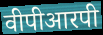
वीपीआरपी